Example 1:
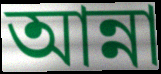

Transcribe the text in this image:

আন্না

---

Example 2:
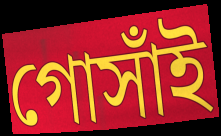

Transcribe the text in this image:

গোসাঁই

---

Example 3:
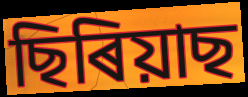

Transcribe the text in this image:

ছিৰিয়াছ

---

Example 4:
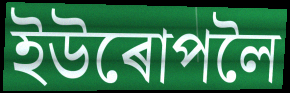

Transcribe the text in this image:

ইউৰোপলৈ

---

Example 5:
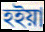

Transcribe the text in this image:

হইয়া